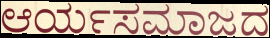
ಆರ್ಯಸಮಾಜದ